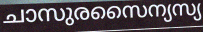
ചാസുരസൈന്യസ്യ